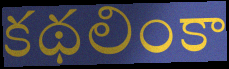
కథలింకా